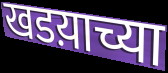
खडय़ाच्या